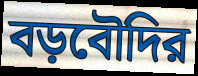
বড়বৌদির